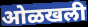
ओळखली